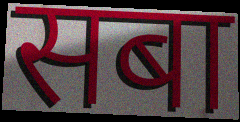
सबा